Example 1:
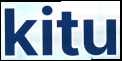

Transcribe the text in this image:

kitu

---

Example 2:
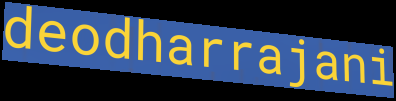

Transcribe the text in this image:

deodharrajani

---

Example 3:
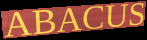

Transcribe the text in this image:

ABACUS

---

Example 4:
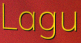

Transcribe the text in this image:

Lagu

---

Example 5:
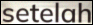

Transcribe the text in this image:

setelah